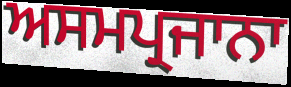
ਅਸਮਪ੍ਰਜਾਨਾ